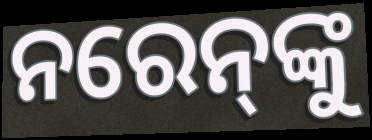
ନରେନ୍‍ଙ୍କୁ